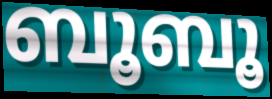
ബൂബൂ